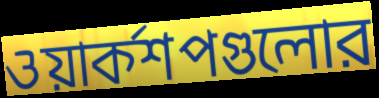
ওয়ার্কশপগুলোর